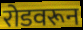
रोडवरून